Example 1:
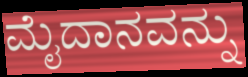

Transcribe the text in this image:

ಮೈದಾನವನ್ನು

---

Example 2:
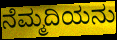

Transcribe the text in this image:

ನೆಮ್ಮದಿಯನು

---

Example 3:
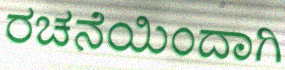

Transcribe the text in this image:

ರಚನೆಯಿಂದಾಗಿ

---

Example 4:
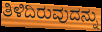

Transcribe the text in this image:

ತಿಳಿದಿರುವುದನ್ನು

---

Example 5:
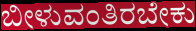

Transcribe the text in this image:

ಬೀಳುವಂತಿರಬೇಕು